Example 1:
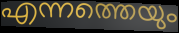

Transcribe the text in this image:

എന്നത്തെയും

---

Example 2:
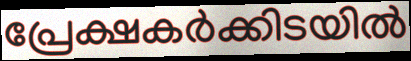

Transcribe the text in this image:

പ്രേക്ഷകർക്കിടയിൽ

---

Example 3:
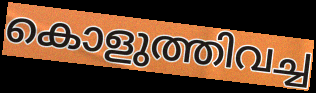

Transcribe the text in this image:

കൊളുത്തിവച്ച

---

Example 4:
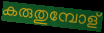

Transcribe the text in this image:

കരുതുമ്പോള്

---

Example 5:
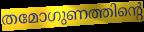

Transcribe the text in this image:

തമോഗുണത്തിന്റെ